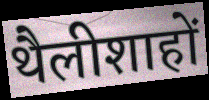
थैलीशाहों